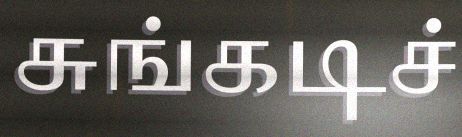
சுங்கடிச்